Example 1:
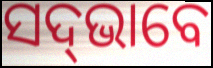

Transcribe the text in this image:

ସଦ୍‌ଭାବେ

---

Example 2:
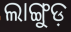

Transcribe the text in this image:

ଲାଙ୍ଗୁଡ଼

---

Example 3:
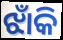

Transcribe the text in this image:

ଝାଁକି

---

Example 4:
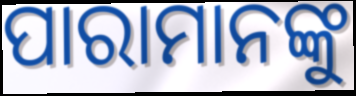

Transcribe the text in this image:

ପାରାମାନଙ୍କୁ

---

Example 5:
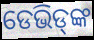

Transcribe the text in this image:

ଡେଭିଡ୍‌ଙ୍କ